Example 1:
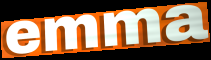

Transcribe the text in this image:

emma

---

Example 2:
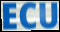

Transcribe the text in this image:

ECU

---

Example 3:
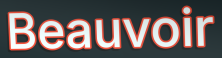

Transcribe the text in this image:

Beauvoir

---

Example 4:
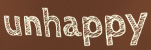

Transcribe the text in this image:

unhappy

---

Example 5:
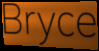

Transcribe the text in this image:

Bryce